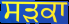
ਸੜਕਾ